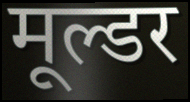
मूल्डर